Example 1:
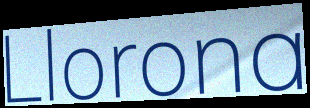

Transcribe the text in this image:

Llorona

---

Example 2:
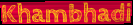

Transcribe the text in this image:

Khambhadi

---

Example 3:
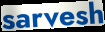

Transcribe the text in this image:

sarvesh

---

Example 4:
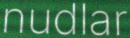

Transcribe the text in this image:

nudlar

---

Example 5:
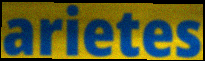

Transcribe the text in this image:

arietes